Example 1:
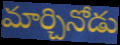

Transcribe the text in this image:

మార్చినోడు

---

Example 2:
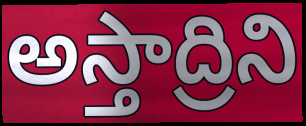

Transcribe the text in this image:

అస్తాద్రిని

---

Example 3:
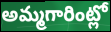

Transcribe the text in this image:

అమ్మగారింట్లో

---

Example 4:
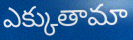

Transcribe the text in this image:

ఎక్కుతామా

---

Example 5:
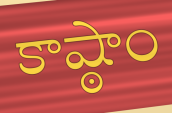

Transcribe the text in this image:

కాష్ఠాం